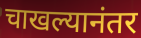
चाखल्यानंतर